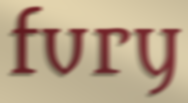
fury